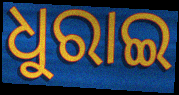
ଧୁରାଇ